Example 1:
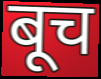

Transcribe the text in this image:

बूच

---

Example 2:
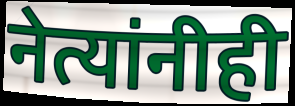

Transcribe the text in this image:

नेत्यांनीही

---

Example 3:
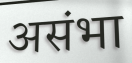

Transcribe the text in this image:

असंभा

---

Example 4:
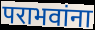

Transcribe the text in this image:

पराभवांना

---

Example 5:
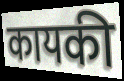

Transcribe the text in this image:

कायकी